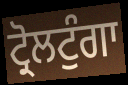
ਟ੍ਰੋਲਟੁੰਗਾ